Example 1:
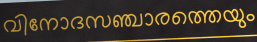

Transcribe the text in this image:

വിനോദസഞ്ചാരത്തെയും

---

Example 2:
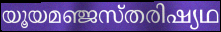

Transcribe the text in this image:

യൂയമഞ്ജസ്തരിഷ്യഥ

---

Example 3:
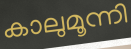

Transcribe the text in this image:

കാലുമൂന്നി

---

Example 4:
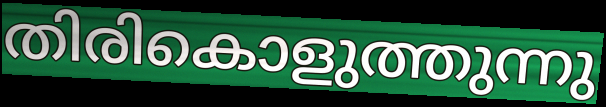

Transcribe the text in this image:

തിരികൊളുത്തുന്നു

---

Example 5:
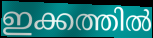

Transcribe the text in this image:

ഇക്കത്തിൽ